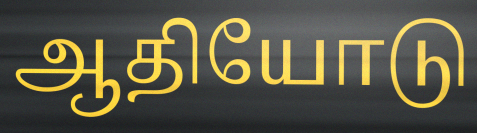
ஆதியோடு